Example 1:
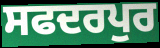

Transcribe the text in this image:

ਸਫਦਰਪੁਰ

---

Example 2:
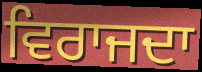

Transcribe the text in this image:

ਵਿਰਾਜਦਾ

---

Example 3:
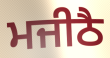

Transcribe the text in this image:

ਮਜੀਠੈ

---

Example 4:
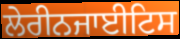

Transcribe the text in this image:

ਲੇਰੀਨਜਾਈਟਿਸ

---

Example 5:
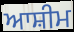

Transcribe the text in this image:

ਆਸ਼ੀਮ